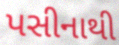
પસીનાથી